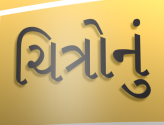
ચિત્રોનું